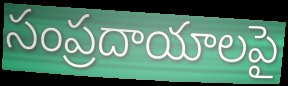
సంప్రదాయాలపై